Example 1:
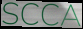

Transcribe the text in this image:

SCCA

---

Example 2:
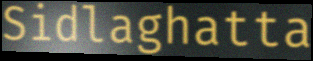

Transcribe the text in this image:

Sidlaghatta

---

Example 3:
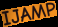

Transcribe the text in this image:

IJAMP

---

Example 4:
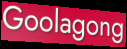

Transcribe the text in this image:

Goolagong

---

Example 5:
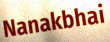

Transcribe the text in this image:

Nanakbhai